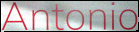
Antonio